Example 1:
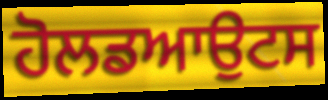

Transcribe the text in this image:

ਹੋਲਡਆਉਟਸ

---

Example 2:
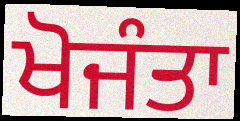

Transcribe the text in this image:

ਖੋਜੰਤਾ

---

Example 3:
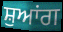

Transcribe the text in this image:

ਸ਼ੁਆਂਗ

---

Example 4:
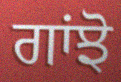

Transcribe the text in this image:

ਗਾਂਝੋ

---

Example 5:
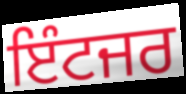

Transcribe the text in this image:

ਇੰਟਜਰ